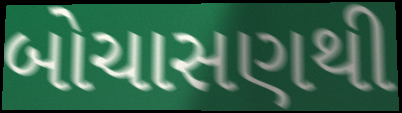
બોચાસણથી